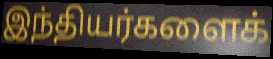
இந்தியர்களைக்